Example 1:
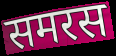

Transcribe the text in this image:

समरस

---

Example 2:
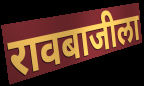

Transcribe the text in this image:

रावबाजीला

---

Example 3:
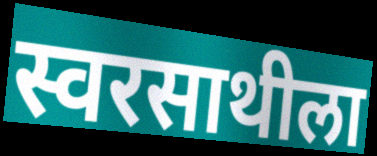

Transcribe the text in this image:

स्वरसाथीला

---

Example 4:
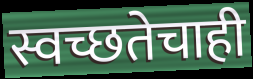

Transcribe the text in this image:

स्वच्छतेचाही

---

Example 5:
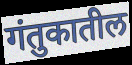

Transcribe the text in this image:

गंतुकातील